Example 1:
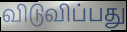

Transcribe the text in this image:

விடுவிப்பது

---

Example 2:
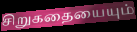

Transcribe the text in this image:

சிறுகதையையும்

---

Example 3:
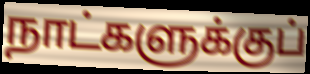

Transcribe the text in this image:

நாட்களுக்குப்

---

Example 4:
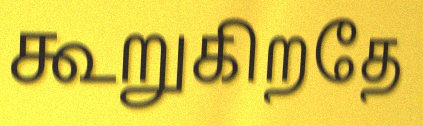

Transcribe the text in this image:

கூறுகிறதே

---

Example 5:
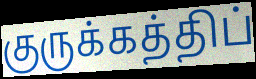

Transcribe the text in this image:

குருக்கத்திப்